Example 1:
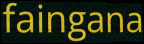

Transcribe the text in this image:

faingana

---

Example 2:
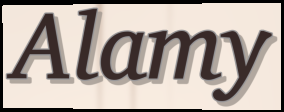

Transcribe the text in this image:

Alamy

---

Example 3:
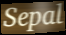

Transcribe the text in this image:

Sepal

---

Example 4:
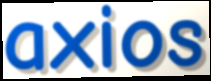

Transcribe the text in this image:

axios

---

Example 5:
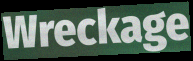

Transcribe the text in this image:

Wreckage